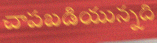
చాపబడియున్నది